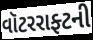
વૉટરરાફ્ટની